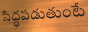
సిద్ధపడుతుంటే